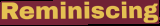
Reminiscing